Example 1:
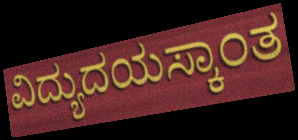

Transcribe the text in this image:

ವಿದ್ಯುದಯಸ್ಕಾಂತ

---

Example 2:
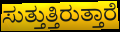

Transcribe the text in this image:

ಸುತ್ತುತ್ತಿರುತ್ತಾರೆ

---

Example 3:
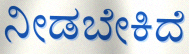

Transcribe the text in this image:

ನೀಡಬೇಕಿದೆ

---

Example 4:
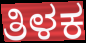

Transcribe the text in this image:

ತಿಳಕ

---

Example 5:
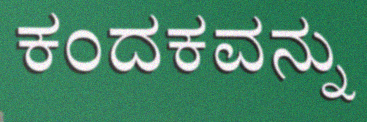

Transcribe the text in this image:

ಕಂದಕವನ್ನು